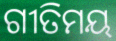
ଗୀତିମୟ